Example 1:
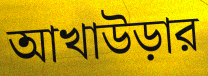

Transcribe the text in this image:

আখাউড়ার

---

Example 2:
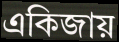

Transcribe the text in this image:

একিজায়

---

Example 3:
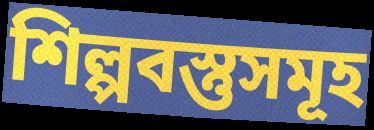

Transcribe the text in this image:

শিল্পবস্তুসমূহ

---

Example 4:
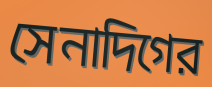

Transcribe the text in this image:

সেনাদিগের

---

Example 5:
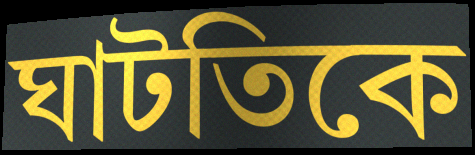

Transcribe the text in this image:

ঘাটতিকে